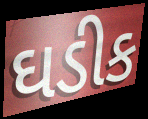
ઘડીક